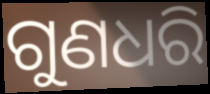
ଗୁଣଧରି